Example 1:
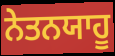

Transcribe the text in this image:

ਨੇਤਨਯਾਹੂ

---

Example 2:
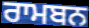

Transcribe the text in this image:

ਰਾਮਬਨ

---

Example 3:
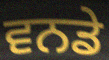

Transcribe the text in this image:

ਵਨਡੇ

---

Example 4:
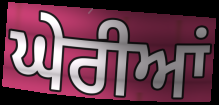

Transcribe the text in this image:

ਘੇਰੀਆਂ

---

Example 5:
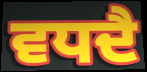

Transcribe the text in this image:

ਵਧਦੈ